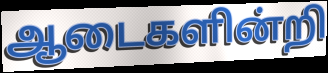
ஆடைகளின்றி